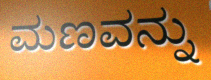
ಮಣವನ್ನು